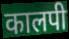
कालपी